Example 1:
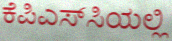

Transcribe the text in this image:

ಕೆಪಿಎಸ್‌ಸಿಯಲ್ಲಿ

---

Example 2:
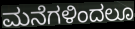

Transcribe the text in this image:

ಮನೆಗಳಿಂದಲೂ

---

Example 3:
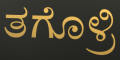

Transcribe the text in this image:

ತಗೊಳ್ರಿ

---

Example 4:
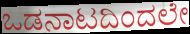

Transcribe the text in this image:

ಒಡನಾಟದಿಂದಲೇ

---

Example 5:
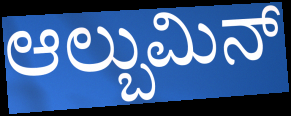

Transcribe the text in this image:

ಆಲ್ಬುಮಿನ್